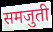
समजुती